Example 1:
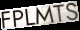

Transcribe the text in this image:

FPLMTS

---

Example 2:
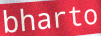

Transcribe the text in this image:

bharto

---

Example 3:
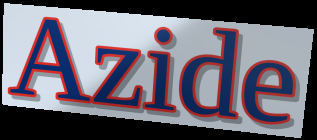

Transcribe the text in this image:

Azide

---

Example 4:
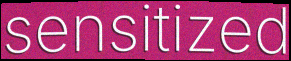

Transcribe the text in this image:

sensitized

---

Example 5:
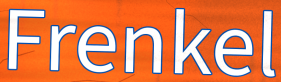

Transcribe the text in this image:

Frenkel